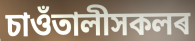
চাওঁতালীসকলৰ